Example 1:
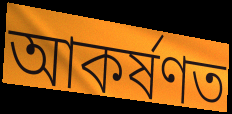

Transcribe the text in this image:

আকৰ্ষণত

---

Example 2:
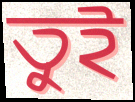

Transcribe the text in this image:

তুই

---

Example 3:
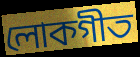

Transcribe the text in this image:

লোকগীত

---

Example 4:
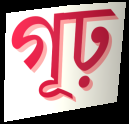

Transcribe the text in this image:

গূঢ়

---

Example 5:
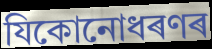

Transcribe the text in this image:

যিকোনোধৰণৰ